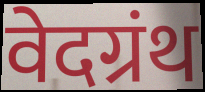
वेदग्रंथ